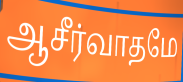
ஆசீர்வாதமே